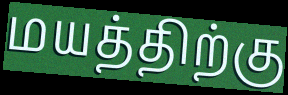
மயத்திற்கு